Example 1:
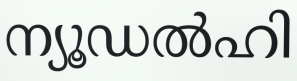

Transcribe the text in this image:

ന്യൂഡൽഹി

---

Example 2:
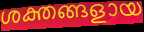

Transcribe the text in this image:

ശക്തങ്ങളായ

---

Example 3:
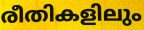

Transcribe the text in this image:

രീതികളിലും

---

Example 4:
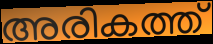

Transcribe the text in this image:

അരികത്ത്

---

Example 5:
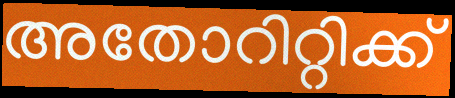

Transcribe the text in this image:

അതോറിറ്റിക്ക്